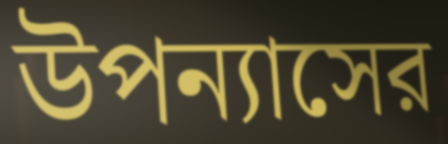
উপন্যাসের